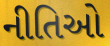
નીતિઓ